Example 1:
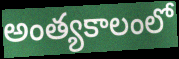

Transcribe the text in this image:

అంత్యకాలంలో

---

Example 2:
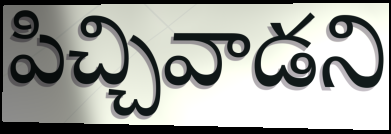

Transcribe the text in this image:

పిచ్చివాడని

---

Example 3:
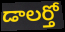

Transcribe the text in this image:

డాలర్తో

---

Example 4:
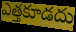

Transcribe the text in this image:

ఎత్తకూడదు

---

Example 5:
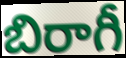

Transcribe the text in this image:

బిరాగీ